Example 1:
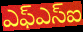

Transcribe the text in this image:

ఎఫ్ఎస్ఐ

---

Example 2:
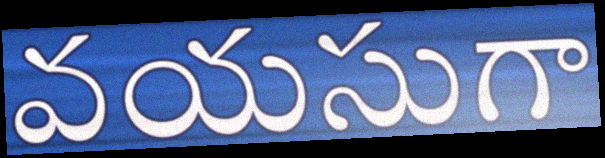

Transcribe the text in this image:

వయసుగా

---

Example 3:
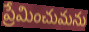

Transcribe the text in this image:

ప్రేమించుమను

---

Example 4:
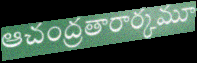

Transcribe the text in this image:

ఆచంద్రతారార్కమూ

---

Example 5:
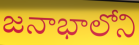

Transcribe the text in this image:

జనాభాలోని